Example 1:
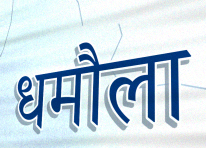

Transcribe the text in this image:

धमौला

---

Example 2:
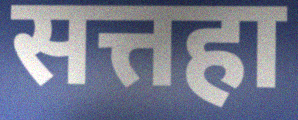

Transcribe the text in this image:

सत्तहा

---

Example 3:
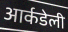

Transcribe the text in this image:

आर्कडेली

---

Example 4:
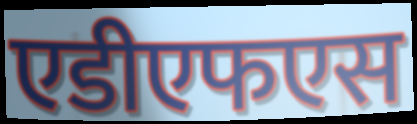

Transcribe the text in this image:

एडीएफएस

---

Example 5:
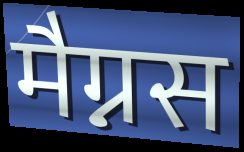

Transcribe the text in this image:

मैग्नस